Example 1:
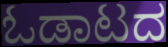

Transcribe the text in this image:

ಓಡಾಟದ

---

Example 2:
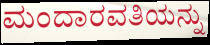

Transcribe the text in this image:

ಮಂದಾರವತಿಯನ್ನು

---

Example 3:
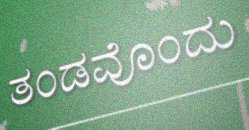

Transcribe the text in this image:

ತಂಡವೊಂದು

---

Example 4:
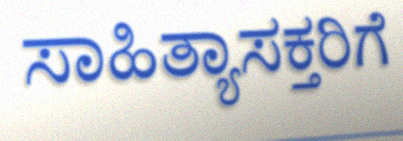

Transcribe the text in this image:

ಸಾಹಿತ್ಯಾಸಕ್ತರಿಗೆ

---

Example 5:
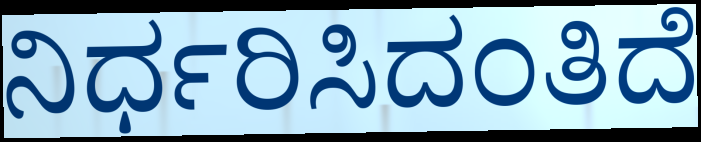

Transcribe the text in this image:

ನಿರ್ಧರಿಸಿದಂತಿದೆ